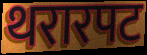
थरारपट